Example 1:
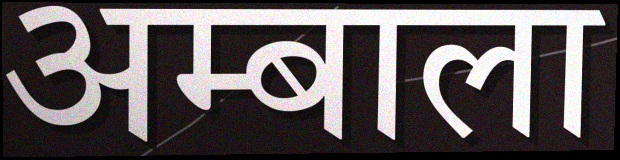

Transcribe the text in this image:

अम्‍बाला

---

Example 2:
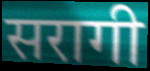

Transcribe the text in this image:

सरागी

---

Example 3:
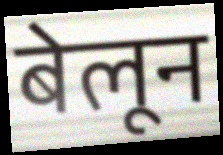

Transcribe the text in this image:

बेलून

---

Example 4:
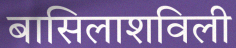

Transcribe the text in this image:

बासिलाशविली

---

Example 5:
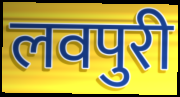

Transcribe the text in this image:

लवपुरी